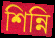
শিন্নি